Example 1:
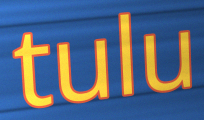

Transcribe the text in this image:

tulu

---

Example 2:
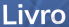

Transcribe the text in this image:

Livro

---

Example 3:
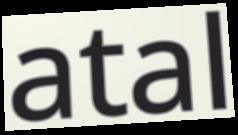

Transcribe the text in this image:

atal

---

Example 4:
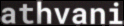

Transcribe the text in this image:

athvani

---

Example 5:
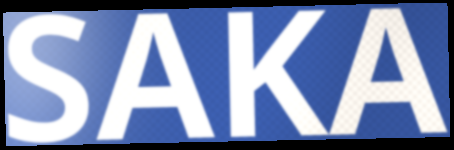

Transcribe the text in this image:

SAKA